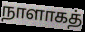
நாளாகத்